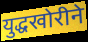
युद्धखोरीने